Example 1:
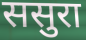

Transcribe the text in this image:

ससुरा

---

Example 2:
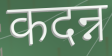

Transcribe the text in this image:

कदन्न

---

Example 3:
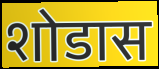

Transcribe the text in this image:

शोडास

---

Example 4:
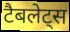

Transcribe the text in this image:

टैबलेट्स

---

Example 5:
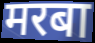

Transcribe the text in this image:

मरबा